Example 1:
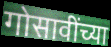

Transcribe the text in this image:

गोसावींच्या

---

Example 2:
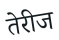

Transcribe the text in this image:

तेरीज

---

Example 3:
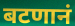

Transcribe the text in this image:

बटणानं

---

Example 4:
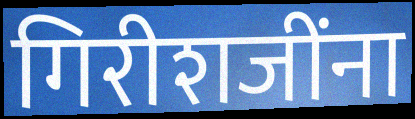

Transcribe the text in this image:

गिरीशजींना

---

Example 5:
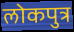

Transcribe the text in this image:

लोकपुत्र